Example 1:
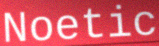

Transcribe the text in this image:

Noetic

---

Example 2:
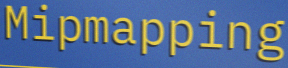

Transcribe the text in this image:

Mipmapping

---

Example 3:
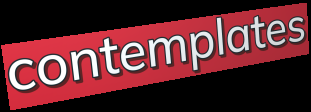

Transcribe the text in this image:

contemplates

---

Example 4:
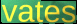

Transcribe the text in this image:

vates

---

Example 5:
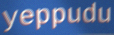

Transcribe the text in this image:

yeppudu